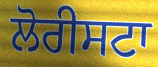
ਲੋਰੀਸਟਾ